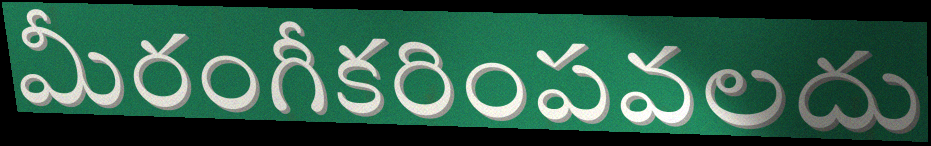
మీరంగీకరింపవలదు